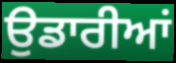
ਉਡਾਰੀਆਂ